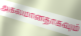
அகலமானதாகவும்